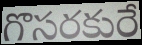
గొసరకురే